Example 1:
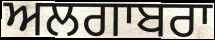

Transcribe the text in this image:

ਅਲਗਾਬਰਾ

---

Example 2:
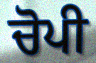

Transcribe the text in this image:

ਚੋਪੀ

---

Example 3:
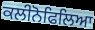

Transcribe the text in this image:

ਕਲੀਨੋਫਿਲਿਆ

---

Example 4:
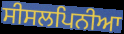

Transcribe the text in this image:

ਸੀਸਲਪਿਨੀਆ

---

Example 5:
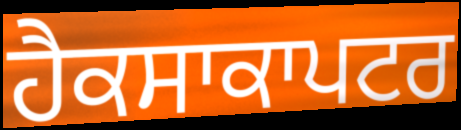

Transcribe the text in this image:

ਹੈਕਸਾਕਾਪਟਰ